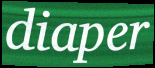
diaper